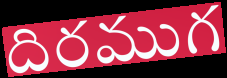
దిరముగ